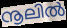
നൂലിൽ